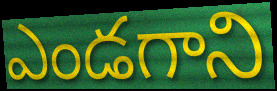
ఎండగాని